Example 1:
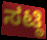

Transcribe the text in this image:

ಸಟ್ಠಿ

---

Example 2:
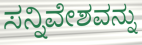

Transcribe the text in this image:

ಸನ್ನಿವೇಶವನ್ನು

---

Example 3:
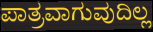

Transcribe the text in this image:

ಪಾತ್ರವಾಗುವುದಿಲ್ಲ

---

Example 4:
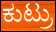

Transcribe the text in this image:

ಕುಟ್ರು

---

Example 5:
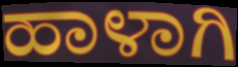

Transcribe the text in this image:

ಹಾಳಾಗಿ